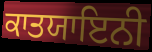
ਕਾਤਯਾਇਨੀ